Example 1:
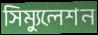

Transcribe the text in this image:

সিম্যুলেশন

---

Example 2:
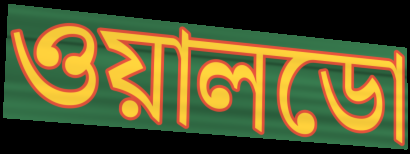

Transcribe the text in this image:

ওয়ালডো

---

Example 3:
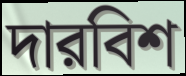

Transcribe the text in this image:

দারবিশ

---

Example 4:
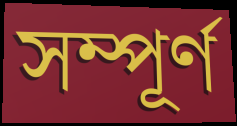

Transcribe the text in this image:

সম্পূর্ণ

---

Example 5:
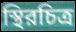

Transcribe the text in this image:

স্থিরচিত্র